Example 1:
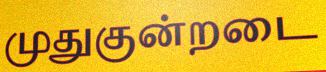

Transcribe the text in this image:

முதுகுன்றடை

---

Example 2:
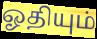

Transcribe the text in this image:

ஓதியும்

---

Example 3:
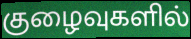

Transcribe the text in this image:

குழைவுகளில்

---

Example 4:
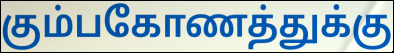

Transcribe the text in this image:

கும்பகோணத்துக்கு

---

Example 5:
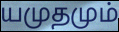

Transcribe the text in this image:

யமுதமும்